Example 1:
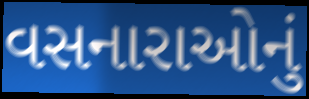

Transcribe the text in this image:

વસનારાઓનું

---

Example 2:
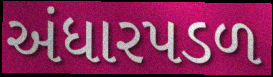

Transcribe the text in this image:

અંધારપડળ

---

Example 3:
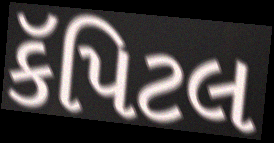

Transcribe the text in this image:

કૅપિટલ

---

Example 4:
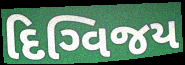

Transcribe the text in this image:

દિગ્વિજય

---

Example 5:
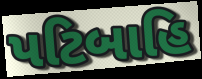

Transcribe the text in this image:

પટિબાહિ